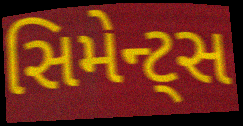
સિમેન્ટ્સ